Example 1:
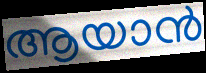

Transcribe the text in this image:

ആയാൻ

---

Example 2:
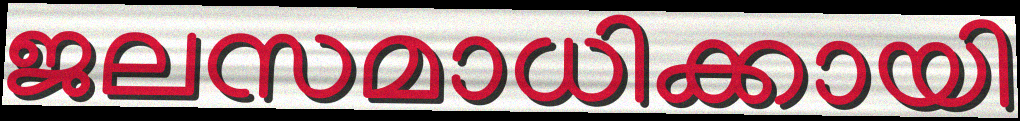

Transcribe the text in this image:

ജലസമാധിക്കായി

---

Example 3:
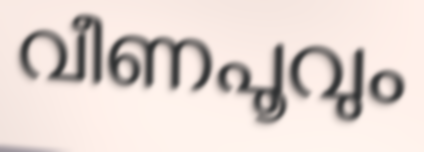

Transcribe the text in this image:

വീണപൂവും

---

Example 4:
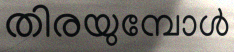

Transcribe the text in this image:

തിരയുമ്പോൾ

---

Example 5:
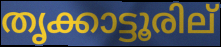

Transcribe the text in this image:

തൃക്കാട്ടൂരില്